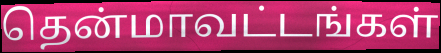
தென்மாவட்டங்கள்